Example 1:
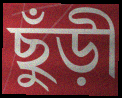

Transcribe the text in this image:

ছুঁড়ী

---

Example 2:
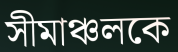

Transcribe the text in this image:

সীমাঞ্চলকে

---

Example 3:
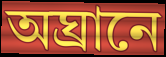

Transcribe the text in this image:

অঘ্রানে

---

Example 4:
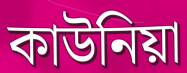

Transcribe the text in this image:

কাউনিয়া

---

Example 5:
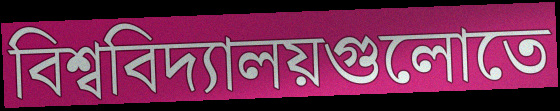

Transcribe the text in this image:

বিশ্ববিদ্যালয়গুলোতে